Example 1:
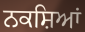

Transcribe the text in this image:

ਨਕਸ਼ਿਆਂ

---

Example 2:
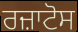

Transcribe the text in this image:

ਰਜ਼ਾਟੋਸ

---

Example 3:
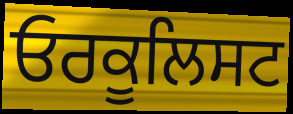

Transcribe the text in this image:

ਓਰਕੂਲਿਸਟ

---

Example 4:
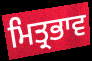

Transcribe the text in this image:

ਮਿਤ੍ਰਭਾਵ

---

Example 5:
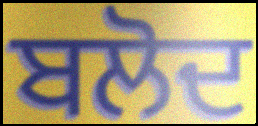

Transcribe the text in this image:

ਬਲੋਦ